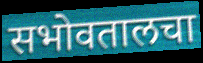
सभोवतालचा